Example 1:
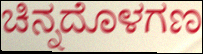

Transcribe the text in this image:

ಚಿನ್ನದೊಳಗಣ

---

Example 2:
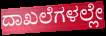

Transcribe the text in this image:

ದಾಖಲೆಗಳಲ್ಲೇ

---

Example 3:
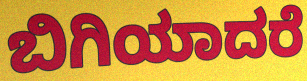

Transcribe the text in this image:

ಬಿಗಿಯಾದರೆ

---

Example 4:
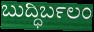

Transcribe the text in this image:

ಬುದ್ಧಿರ್ಬಲಂ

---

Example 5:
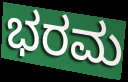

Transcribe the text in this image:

ಭರಮ